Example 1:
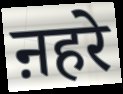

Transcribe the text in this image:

ऩहरे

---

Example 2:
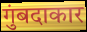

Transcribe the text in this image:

गुंबदाकार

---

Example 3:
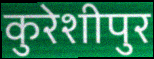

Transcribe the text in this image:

कुरेशीपुर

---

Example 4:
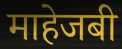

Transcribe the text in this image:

माहेजबी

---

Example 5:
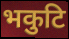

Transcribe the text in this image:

भकुटि